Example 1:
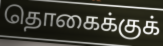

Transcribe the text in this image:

தொகைக்குக்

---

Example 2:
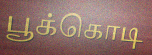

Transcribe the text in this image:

பூக்கொடி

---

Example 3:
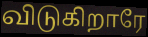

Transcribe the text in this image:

விடுகிறாரே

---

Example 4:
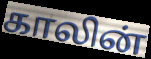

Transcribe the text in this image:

காலின்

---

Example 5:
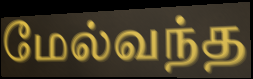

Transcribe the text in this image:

மேல்வந்த